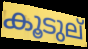
കൂടുല്